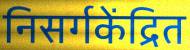
निसर्गकेंद्रित